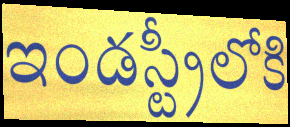
ఇండస్ట్రీలోకి